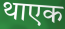
थाएक